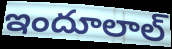
ఇందూలాల్